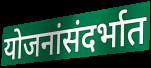
योजनांसंदर्भात